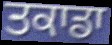
ਤਕਾਡਾ